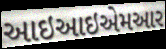
આઇઆઇએમઆર